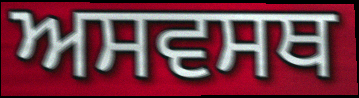
ਅਸਵਸਥ